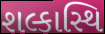
શલ્કાસ્થિ